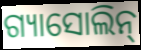
ଗ୍ୟାସୋଲିନ୍